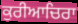
ਕੁਰੀਆਚਿਰਾ